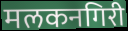
मलकनगिरी